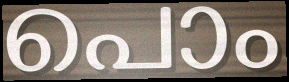
പൊം